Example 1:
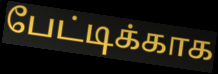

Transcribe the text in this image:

பேட்டிக்காக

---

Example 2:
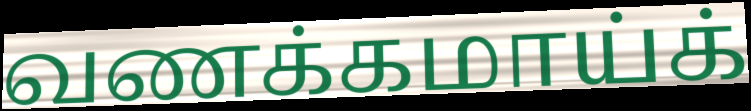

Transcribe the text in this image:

வணக்கமாய்க்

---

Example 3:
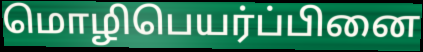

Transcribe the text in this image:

மொழிபெயர்ப்பினை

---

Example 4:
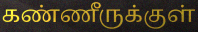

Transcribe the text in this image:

கண்ணீருக்குள்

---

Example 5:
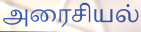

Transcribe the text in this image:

அரைசியல்